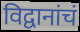
विद्वानांचं